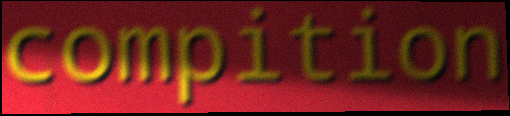
compition